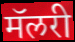
मॅलरी